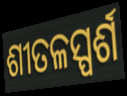
ଶୀତଳସ୍ପର୍ଶ